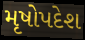
મૃષોપદેશ